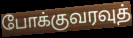
போக்குவரவுத்